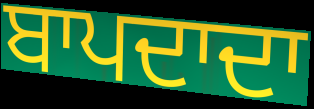
ਬਾਪਦਾਦਾ